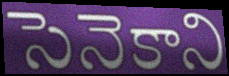
సెనెకాని